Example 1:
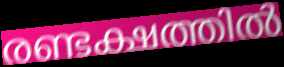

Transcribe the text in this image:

രണ്ടക്ഷത്തിൽ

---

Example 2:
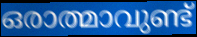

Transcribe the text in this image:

ഒരാത്മാവുണ്ട്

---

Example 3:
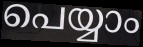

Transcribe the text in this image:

പെയ്യാം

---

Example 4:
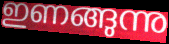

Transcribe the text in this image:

ഇണങ്ങുന്നു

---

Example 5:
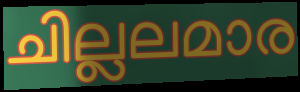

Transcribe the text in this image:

ചില്ലലമാര